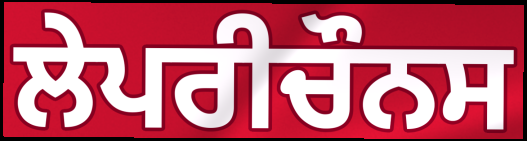
ਲੇਪਰੀਚੌਨਸ